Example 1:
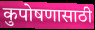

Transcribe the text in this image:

कुपोषणासाठी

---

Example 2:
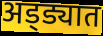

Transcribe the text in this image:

अड्ड्यात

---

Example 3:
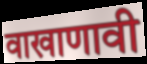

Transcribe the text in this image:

वाखाणावी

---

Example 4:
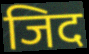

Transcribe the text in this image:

जिद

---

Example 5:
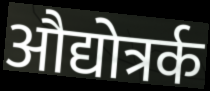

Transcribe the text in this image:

औद्योत्रर्क